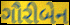
ગૌરીબેન